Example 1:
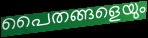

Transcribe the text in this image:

പൈതങ്ങളെയും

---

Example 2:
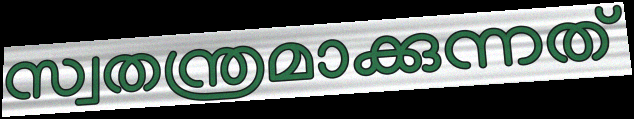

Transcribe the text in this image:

സ്വതന്ത്രമാക്കുന്നത്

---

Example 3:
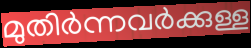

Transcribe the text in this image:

മുതിർന്നവർക്കുള്ള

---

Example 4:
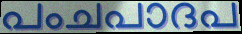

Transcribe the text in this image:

പംചപാദപ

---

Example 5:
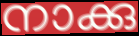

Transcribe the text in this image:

നാക്കു